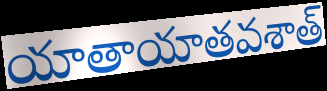
యాతాయాతవశాత్